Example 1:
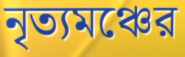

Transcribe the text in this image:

নৃত্যমঞ্চের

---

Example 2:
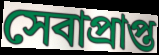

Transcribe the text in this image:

সেবাপ্রাপ্ত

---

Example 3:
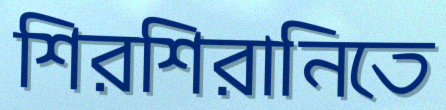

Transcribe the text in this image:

শিরশিরানিতে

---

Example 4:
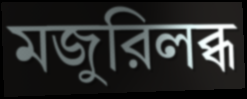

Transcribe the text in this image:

মজুরিলব্ধ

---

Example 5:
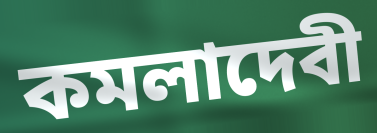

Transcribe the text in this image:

কমলাদেবী